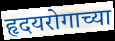
हृदयरोगाच्या